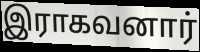
இராகவனார்